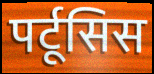
पर्टूसिस